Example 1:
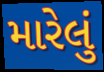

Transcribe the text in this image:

મારેલું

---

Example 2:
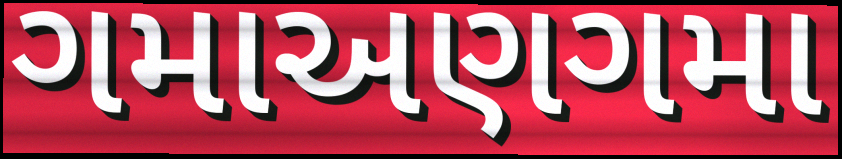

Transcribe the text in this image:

ગમાઅણગમા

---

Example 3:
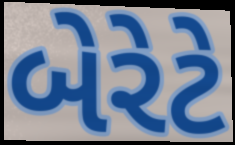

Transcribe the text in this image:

બેરેટે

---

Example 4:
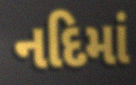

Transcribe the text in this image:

નદિમાં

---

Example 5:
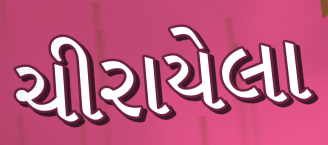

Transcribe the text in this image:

ચીરાયેલા